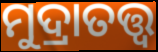
ମୁଦ୍ରାତତ୍ତ୍ବ